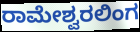
ರಾಮೇಶ್ವರಲಿಂಗ